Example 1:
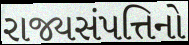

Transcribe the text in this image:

રાજ્યસંપત્તિનો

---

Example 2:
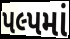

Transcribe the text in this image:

પલ્પમાં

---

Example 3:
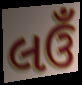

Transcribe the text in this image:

લઉઁ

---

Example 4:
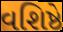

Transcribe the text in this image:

વશિષ્ઠે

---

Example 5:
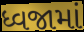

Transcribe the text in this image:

ધ્વજામાં